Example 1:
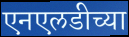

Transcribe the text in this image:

एनएलडीच्या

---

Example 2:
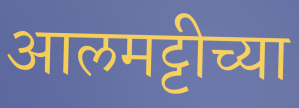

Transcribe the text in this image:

आलमट्टीच्या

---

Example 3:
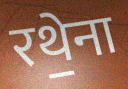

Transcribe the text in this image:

रथे॒ना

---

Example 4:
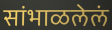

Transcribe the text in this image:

सांभाळलेलं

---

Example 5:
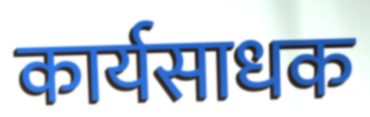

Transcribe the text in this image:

कार्यसाधक